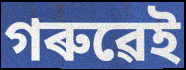
গৰুৱেই